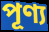
পূণ্য